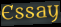
Essay